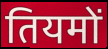
तियमों